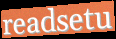
readsetu